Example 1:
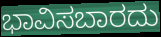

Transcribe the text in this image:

ಭಾವಿಸಬಾರದು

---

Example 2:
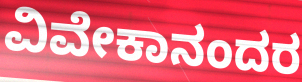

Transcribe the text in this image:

ವಿವೇಕಾನಂದರ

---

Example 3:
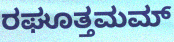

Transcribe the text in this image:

ರಘೂತ್ತಮಮ್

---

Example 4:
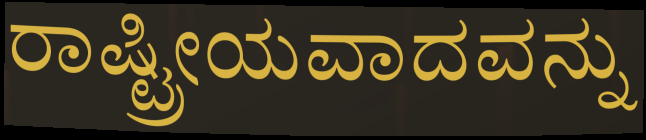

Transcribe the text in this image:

ರಾಷ್ಟ್ರೀಯವಾದವನ್ನು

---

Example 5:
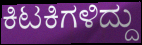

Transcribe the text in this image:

ಕಿಟಕಿಗಳಿದ್ದು